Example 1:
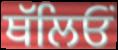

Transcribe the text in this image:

ਥੱਲਿਓਂ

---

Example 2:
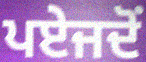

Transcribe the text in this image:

ਪਏਜਦੋਂ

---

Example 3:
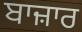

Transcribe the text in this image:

ਬਾਜ਼ਾਰ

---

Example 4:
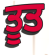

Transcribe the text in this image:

ਤੂਤ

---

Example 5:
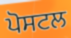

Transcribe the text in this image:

ਪੋਸਟਲ